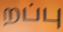
றப்பு